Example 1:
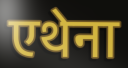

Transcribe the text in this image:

एथेना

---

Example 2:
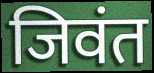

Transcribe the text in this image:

जिवंत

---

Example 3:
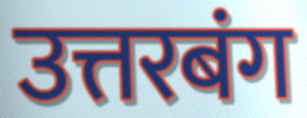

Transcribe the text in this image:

उत्तरबंग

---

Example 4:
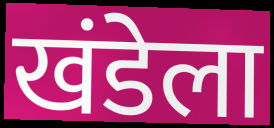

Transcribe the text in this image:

खंडेला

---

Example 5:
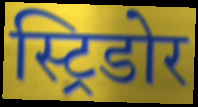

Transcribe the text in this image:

स्ट्रिडोर